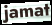
jamat